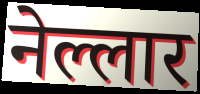
नेल्लार